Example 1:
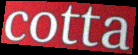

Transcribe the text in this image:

cotta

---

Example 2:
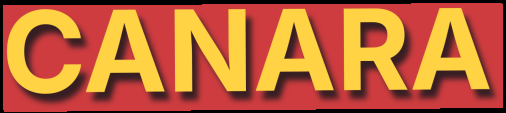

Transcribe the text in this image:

CANARA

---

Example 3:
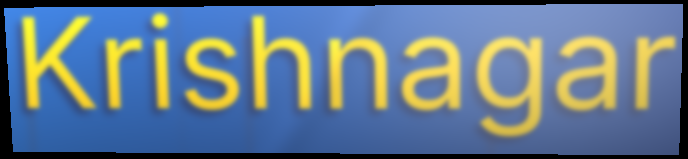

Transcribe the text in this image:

Krishnagar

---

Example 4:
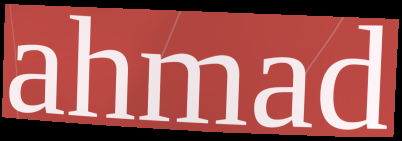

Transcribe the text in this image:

ahmad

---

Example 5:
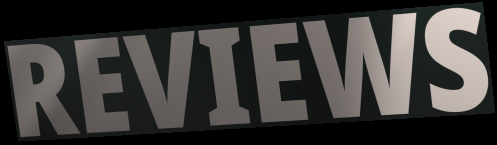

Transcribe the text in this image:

REVIEWS